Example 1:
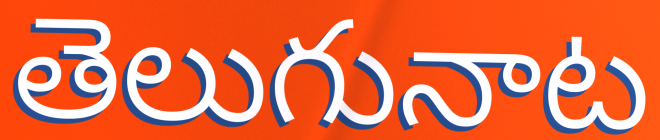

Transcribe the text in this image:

తెలుగునాట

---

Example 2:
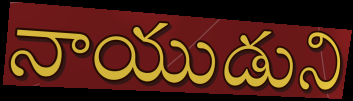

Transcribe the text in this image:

నాయుడుని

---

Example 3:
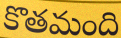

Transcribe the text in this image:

కొతమంది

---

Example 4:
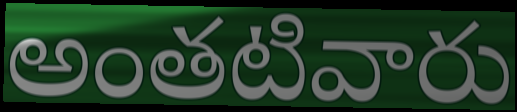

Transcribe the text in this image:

అంతటివారు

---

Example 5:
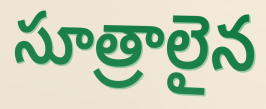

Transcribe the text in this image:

సూత్రాలైన